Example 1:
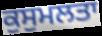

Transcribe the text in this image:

ਕੁਸੁਮਲਤਾ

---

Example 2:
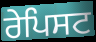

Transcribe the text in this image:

ਰੇਪਿਸਟ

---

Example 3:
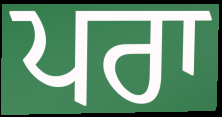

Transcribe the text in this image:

ਪਰਾ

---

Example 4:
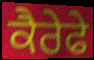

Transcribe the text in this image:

ਕੈਰੇਫੇ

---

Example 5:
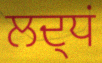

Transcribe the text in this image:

ਲਦ੍ਧਂ